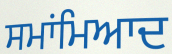
ਸਮਾਂਮਿਆਦ